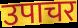
उपाचर